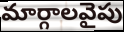
మార్గాలవైపు